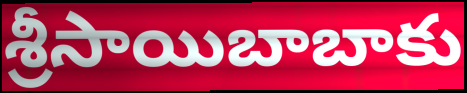
శ్రీసాయిబాబాకు